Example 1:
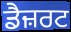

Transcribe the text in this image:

ਡੈਜ਼ਰਟ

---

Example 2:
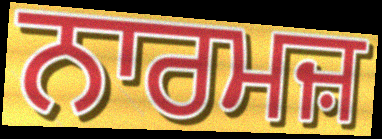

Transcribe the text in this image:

ਨਾਰਮਜ਼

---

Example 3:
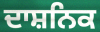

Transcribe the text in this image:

ਦਾਸ਼ਨਿਕ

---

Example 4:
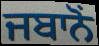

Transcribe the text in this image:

ਜਬਾਨੋਂ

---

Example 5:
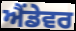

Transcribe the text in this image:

ਐਂਡੇਵਰ